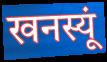
खनस्यूं